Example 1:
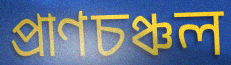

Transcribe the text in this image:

প্রাণচঞ্চল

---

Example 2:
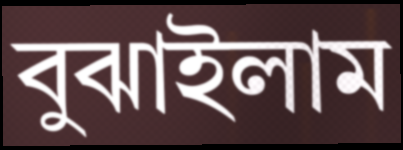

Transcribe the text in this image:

বুঝাইলাম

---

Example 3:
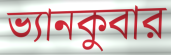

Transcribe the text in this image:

ভ্যানকুবার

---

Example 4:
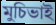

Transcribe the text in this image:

মুচিভাই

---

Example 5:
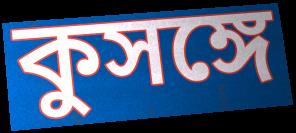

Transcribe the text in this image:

কুসঙ্গে